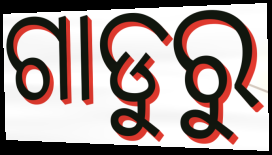
ଗାଡୁରୁ